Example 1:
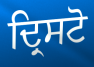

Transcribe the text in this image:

ਦ੍ਰਿਸਟੋ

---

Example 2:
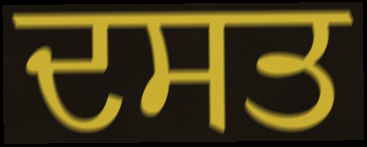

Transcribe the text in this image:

ਦਸਤ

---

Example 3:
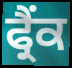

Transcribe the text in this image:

ਫ੍ਰੈਂਕ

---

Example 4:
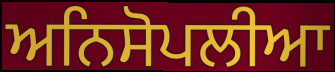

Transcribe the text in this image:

ਅਨਿਸੋਪਲੀਆ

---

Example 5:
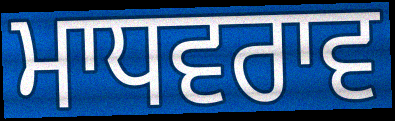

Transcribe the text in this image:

ਮਾਧਵਰਾਵ